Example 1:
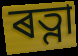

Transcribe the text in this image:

ৰত্না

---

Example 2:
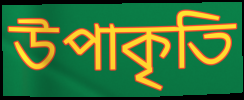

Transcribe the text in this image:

উপাকৃতি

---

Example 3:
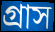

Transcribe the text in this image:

গ্ৰাস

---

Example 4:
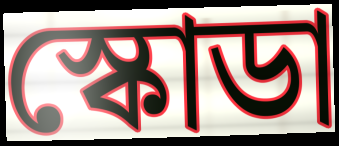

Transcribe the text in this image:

স্কোডা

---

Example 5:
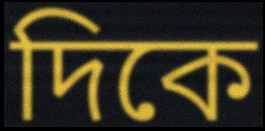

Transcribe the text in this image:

দিকে